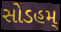
સોડહમ્